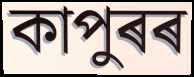
কাপুৰৰ